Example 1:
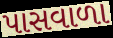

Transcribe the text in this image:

પાસવાળા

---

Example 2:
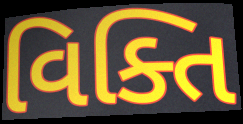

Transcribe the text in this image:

વિક્તિ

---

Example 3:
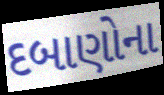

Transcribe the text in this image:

દબાણોના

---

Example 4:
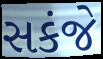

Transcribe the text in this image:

સકંજે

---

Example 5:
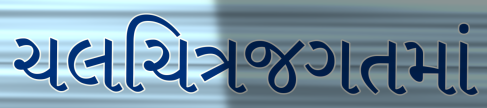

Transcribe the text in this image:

ચલચિત્રજગતમાં